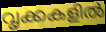
വൃക്കകളിൽ